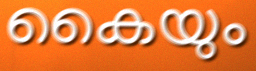
കൈയും